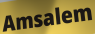
Amsalem